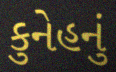
કુનેહનું